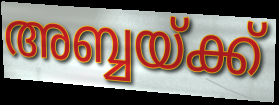
അബ്ബയ്ക്ക്